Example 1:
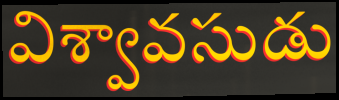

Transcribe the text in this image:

విశ్వావసుడు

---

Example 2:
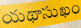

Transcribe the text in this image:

యథాసుఖం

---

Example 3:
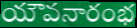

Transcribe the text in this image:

యౌవనారంభ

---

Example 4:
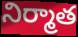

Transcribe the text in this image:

నిర్మాత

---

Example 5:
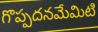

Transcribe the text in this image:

గొప్పదనమేమిటి